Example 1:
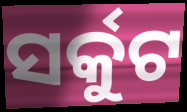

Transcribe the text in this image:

ସର୍କୁଟ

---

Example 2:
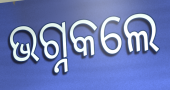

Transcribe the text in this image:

ଭଗ୍ନକଲେ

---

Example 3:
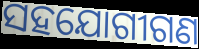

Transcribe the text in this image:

ସହଯୋଗୀଗଣ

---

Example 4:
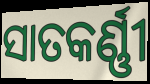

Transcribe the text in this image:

ସାତକର୍ଣ୍ଣୀ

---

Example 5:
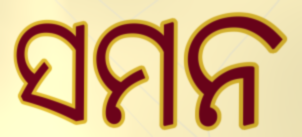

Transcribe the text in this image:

ସମନ